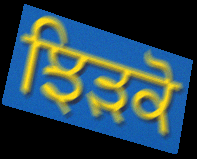
ਝਿੜਕੋ